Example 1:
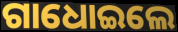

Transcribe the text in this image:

ଗାଧୋଇଲେ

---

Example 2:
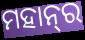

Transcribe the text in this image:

ମହାନ୍‌ର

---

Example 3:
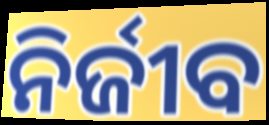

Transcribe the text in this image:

ନିର୍ଜୀବ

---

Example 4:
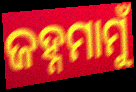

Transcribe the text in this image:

ଜହ୍ନମାମୁଁ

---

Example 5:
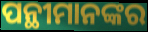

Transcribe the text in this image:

ପନ୍ଥୀମାନଙ୍କର